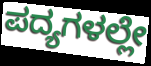
ಪದ್ಯಗಳಲ್ಲೇ